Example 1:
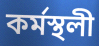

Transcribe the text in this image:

কৰ্মস্থলী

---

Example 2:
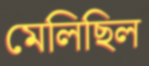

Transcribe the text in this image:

মেলিছিল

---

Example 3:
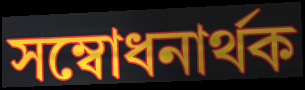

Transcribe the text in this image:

সম্বোধনাৰ্থক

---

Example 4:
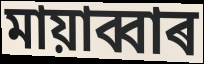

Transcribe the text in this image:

মায়াব্বাৰ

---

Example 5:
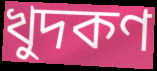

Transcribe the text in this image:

খুদকণ